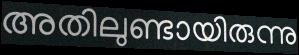
അതിലുണ്ടായിരുന്നു